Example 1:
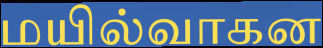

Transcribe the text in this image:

மயில்வாகன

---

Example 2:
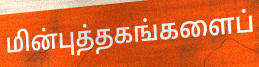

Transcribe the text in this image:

மின்புத்தகங்களைப்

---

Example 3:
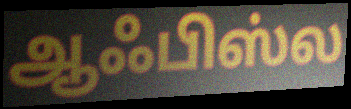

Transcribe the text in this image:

ஆஃபிஸ்ல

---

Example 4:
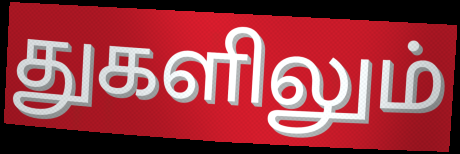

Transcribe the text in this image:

துகளிலும்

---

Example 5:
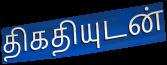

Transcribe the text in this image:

திகதியுடன்